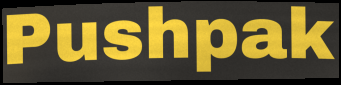
Pushpak